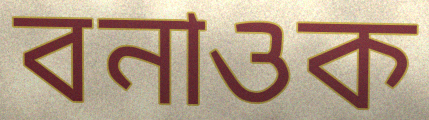
বনাওক